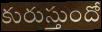
కురుస్తుందో